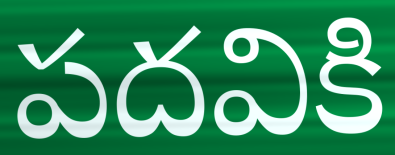
పదవికి